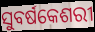
ସୁବର୍ଷକେଶରୀ